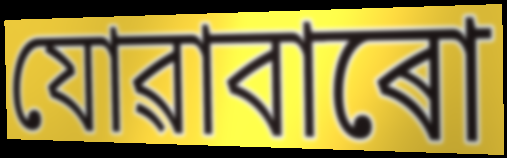
যোৱাবাৰো